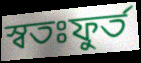
স্বতঃফুর্ত